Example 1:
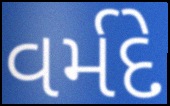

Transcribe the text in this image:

વર્મદે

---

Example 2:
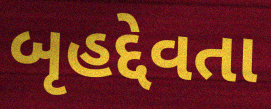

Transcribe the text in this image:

બૃહદ્દેવતા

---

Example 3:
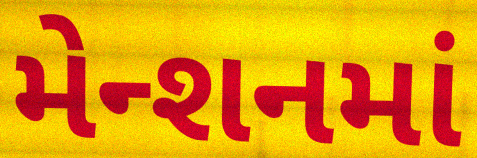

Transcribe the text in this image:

મેન્શનમાં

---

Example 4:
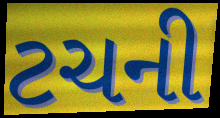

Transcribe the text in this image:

ટચની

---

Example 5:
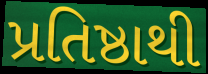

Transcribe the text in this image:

પ્રતિષ્ઠાથી